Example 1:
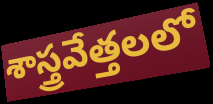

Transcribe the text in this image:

శాస్త్రవేత్తలలో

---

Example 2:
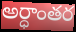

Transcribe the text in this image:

అర్ధాంతర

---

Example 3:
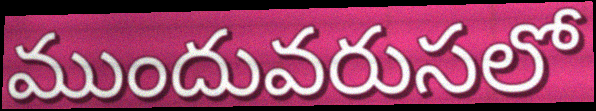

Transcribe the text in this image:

ముందువరుసలో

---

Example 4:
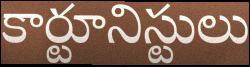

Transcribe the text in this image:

కార్టూనిస్టులు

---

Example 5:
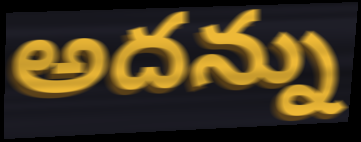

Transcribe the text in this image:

అదన్ను